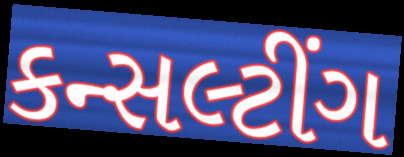
કન્સલ્ટીંગ